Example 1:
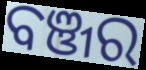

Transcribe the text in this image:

ବଞ୍ଜର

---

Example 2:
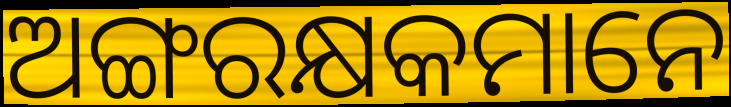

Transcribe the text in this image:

ଅଙ୍ଗରକ୍ଷକମାନେ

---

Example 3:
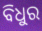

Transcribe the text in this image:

ବିଧୁର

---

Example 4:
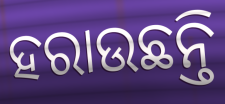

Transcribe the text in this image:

ହରାଉଛନ୍ତି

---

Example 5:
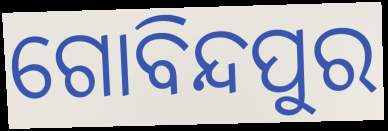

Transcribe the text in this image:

ଗୋବିନ୍ଦପୁର